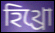
হিথ্রো